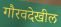
गौरवदेखील